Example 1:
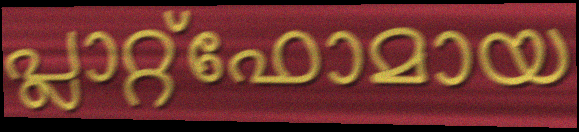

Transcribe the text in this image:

പ്ലാറ്റ്ഫോമായ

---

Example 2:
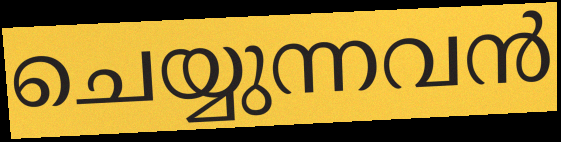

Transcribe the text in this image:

ചെയ്യുന്നവൻ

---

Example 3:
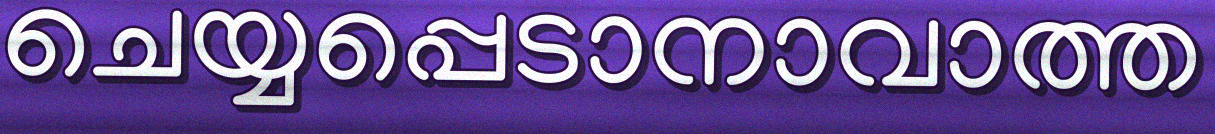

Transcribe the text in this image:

ചെയ്യപ്പെടാനാവാത്ത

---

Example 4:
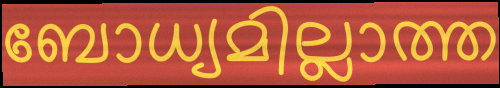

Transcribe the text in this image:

ബോധ്യമില്ലാത്ത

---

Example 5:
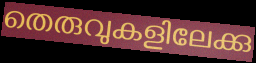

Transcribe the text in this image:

തെരുവുകളിലേക്കു